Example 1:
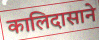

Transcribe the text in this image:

कालिदासाने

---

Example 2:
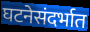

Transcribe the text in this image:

घटनेसंदर्भात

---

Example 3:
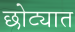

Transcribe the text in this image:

छोट्यात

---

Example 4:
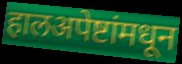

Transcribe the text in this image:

हालअपेष्टांमधून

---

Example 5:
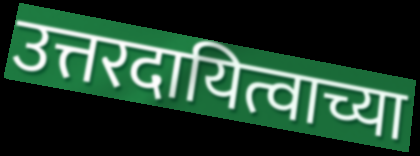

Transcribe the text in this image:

उत्तरदायित्वाच्या